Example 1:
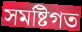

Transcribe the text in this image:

সমষ্টিগত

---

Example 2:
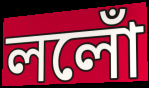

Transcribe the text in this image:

ললোঁ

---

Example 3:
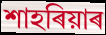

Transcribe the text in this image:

শাহৰিয়াৰ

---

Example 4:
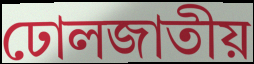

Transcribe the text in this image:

ঢোলজাতীয়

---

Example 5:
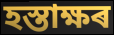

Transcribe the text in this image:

হস্তাক্ষৰ